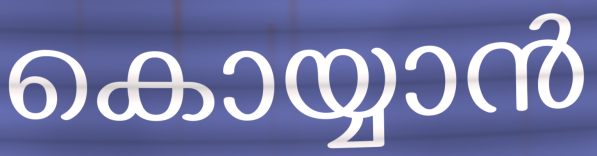
കൊയ്യാൻ